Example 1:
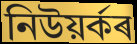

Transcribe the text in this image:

নিউয়ৰ্কৰ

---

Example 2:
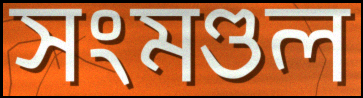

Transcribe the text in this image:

সংমণ্ডল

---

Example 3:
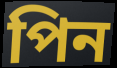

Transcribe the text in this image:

পিন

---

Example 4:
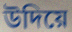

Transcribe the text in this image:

উদিয়ে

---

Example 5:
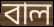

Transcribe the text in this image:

বাল